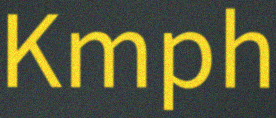
Kmph